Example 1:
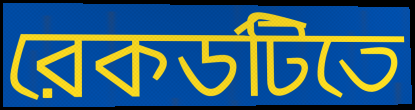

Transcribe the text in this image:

রেকর্ডটিতে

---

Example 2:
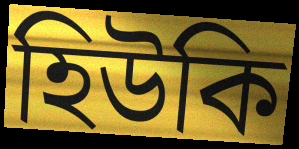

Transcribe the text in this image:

হিউকি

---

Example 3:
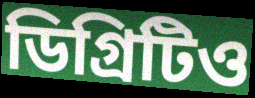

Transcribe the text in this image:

ডিগ্রিটিও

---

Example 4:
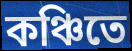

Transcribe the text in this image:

কঞ্চিতে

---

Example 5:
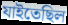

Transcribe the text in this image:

যাইতেছিল